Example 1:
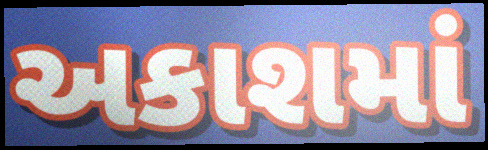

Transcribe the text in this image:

અકાશમાં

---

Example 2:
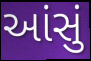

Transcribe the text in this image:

આંસું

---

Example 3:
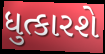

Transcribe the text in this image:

ધુત્કારશે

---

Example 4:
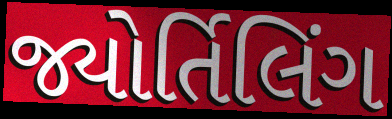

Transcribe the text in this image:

જ્યોર્તિલિંગ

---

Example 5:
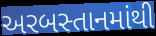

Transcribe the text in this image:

અરબસ્તાનમાંથી